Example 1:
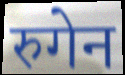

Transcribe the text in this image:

रुगेन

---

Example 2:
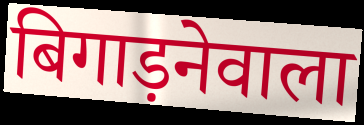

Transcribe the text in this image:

बिगाड़नेवाला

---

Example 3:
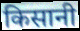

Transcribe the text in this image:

किसानी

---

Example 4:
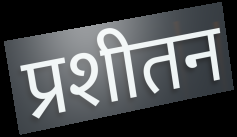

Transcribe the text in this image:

प्रशीतन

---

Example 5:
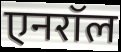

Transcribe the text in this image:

एनरॉल